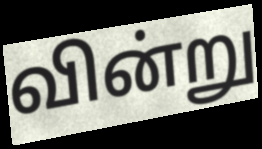
வின்று